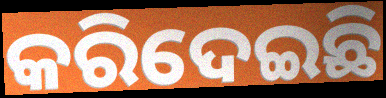
କରିଦେଇଛି